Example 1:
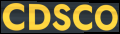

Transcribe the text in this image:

CDSCO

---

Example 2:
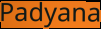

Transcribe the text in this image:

Padyana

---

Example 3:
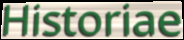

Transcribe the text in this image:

Historiae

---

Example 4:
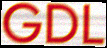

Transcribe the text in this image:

GDL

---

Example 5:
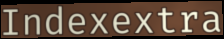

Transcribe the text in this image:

Indexextra